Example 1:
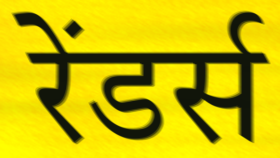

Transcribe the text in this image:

रेंडर्स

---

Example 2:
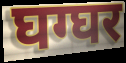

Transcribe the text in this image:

घग्घर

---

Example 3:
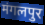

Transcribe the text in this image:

मंगलपुर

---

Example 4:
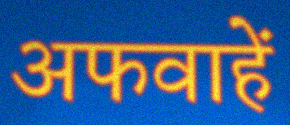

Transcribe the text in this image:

अफवाहें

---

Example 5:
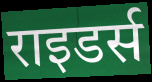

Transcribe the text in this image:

राइडर्स